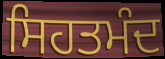
ਸਿਹਤਮੰਦ